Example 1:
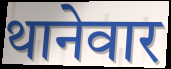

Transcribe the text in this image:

थानेवार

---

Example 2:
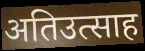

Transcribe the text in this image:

अतिउत्साह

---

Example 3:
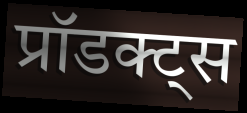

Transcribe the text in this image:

प्रॉडक्ट्स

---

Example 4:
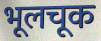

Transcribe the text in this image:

भूलचूक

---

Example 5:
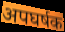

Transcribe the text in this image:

अपघर्षक